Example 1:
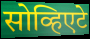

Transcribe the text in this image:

सोव्हिएटे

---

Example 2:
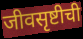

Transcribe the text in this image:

जीवसृष्टीची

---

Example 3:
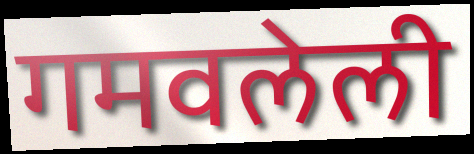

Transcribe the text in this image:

गमवलेली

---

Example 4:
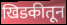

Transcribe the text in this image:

खिडकीतून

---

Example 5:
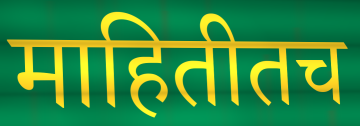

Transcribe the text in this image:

माहितीतच